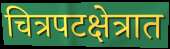
चित्रपटक्षेत्रात